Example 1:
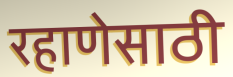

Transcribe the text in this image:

रहाणेसाठी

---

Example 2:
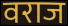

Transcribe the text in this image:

वराज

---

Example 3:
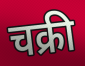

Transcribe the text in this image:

चक्री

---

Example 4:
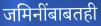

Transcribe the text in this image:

जमिनींबाबतही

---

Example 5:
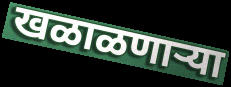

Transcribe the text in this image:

खळाळणाऱ्या